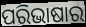
ପରିଭାଷାର